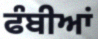
ਫੰਬੀਆਂ